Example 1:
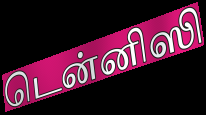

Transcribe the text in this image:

டென்னிஸி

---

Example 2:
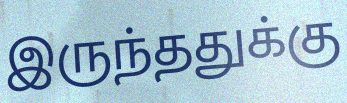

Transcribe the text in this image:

இருந்ததுக்கு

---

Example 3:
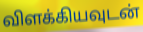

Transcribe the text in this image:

விளக்கியவுடன்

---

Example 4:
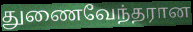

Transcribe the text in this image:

துணைவேந்தரான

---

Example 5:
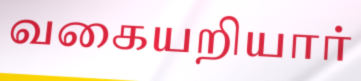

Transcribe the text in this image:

வகையறியார்